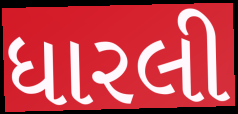
ધારલી